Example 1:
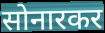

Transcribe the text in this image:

सोनारकर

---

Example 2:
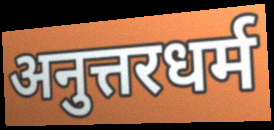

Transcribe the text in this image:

अनुत्तरधर्म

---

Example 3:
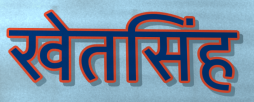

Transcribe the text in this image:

खेतसिंह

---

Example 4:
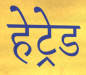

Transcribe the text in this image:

हेट्रेड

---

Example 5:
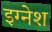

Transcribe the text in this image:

इग्नेश